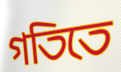
গতিতে